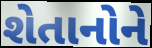
શેતાનોને